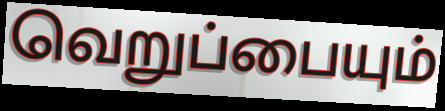
வெறுப்பையும்